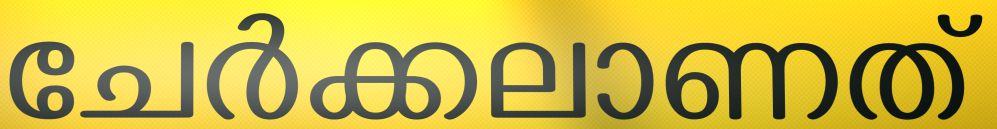
ചേർക്കലാണത്